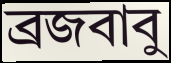
ব্রজবাবু